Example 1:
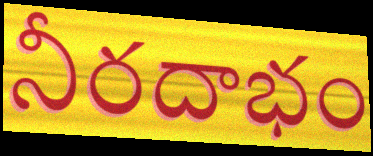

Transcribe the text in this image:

నీరదాభం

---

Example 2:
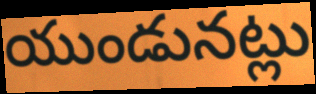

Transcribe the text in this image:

యుండునట్లు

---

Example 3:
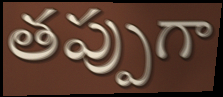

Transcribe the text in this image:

తప్పుగా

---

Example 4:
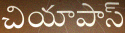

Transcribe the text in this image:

చియాపాస్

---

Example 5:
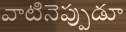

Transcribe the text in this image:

వాటినెప్పుడూ